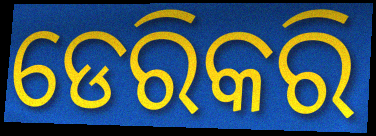
ଡେରିକରି